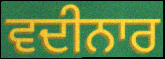
ਵਦੀਨਾਰ